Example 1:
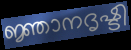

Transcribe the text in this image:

ജ്ഞാനദൃഷ്ടി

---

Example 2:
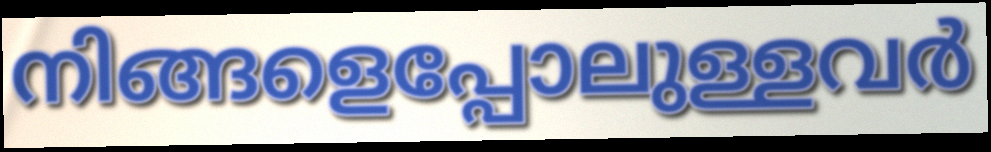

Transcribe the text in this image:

നിങ്ങളെപ്പോലുള്ളവർ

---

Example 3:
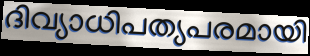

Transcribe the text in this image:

ദിവ്യാധിപത്യപരമായി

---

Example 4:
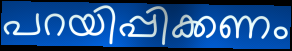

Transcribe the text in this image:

പറയിപ്പിക്കണം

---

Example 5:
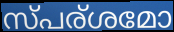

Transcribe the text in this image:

സ്പര്ശമോ